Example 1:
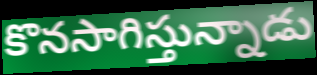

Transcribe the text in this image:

కొనసాగిస్తున్నాడు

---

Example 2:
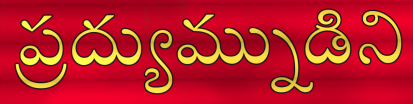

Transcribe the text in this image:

ప్రద్యుమ్నుడిని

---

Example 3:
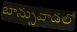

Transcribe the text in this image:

బాన్సువాడలో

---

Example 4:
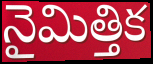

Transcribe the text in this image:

నైమిత్తిక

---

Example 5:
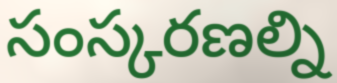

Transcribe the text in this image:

సంస్కరణల్ని